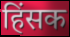
हिंसक